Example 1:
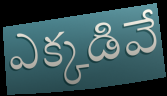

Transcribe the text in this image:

ఎక్కడివే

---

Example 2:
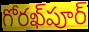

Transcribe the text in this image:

గోరఖ్‌పూర్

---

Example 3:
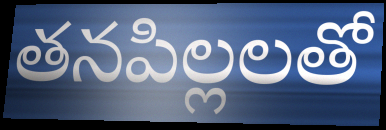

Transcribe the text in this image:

తనపిల్లలతో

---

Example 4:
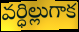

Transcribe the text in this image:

వర్ధిల్లుగాక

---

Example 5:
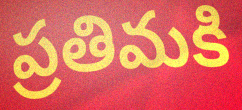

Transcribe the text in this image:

ప్రతిమకి